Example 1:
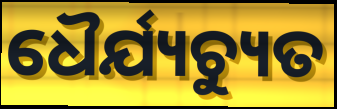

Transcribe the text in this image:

ଧୈର୍ଯ୍ୟଚ୍ୟୁତ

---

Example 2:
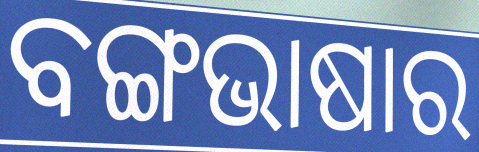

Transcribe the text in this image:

ବଙ୍ଗଭାଷାର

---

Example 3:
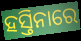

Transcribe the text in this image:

ହସ୍ତିନାରେ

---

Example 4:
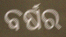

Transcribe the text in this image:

ବର୍ଷର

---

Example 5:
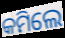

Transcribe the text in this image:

କମିଲେ